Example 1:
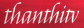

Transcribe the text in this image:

thanthitv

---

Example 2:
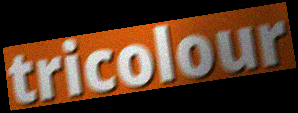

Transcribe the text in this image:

tricolour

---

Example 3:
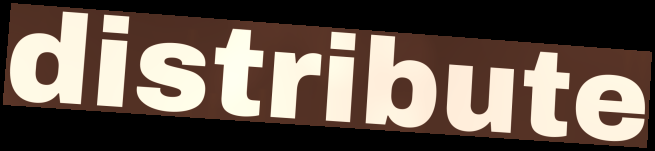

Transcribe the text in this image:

distribute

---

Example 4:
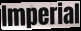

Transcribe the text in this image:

Imperial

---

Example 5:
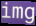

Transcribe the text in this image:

img